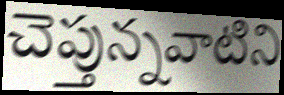
చెప్తున్నవాటిని